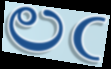
లఁ